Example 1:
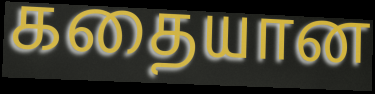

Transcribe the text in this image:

கதையான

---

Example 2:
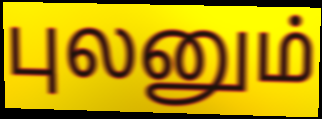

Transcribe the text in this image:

புலனும்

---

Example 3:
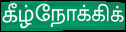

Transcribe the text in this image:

கீழ்நோக்கிக்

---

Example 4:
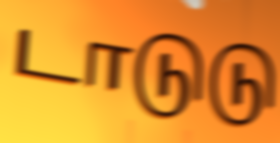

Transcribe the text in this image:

டாடுடு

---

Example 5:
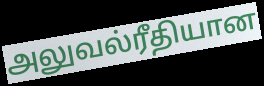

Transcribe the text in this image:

அலுவல்ரீதியான